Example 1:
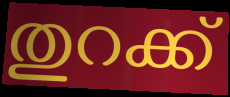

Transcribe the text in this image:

തുറക്ക്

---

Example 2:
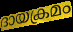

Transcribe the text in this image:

ദായക്രമം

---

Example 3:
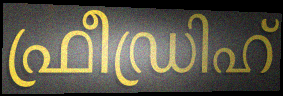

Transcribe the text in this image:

ഫ്രീഡ്രിഹ്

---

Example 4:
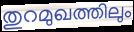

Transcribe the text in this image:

തുറമുഖത്തിലും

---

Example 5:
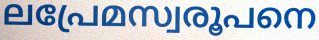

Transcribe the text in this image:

ലപ്രേമസ്വരൂപനെ